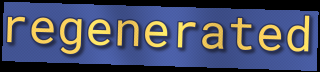
regenerated